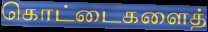
கொட்டைகளைத்